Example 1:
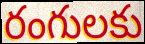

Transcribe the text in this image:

రంగులకు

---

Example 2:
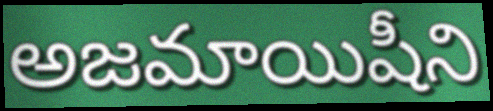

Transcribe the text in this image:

అజమాయిషీని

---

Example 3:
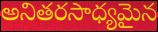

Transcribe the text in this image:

అనితరసాధ్యమైన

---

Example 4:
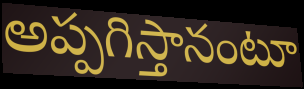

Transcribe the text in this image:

అప్పగిస్తానంటూ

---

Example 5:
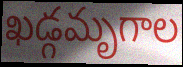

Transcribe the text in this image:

ఖడ్గమృగాల